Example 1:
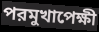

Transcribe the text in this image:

পরমুখাপেক্ষী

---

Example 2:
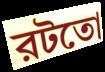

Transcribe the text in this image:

রটতো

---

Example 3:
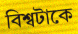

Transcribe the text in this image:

বিশ্বটাকে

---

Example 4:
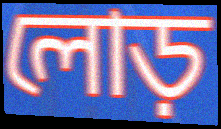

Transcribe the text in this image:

লোড়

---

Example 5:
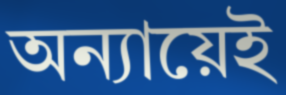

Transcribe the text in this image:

অন্যায়েই